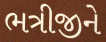
ભત્રીજીને